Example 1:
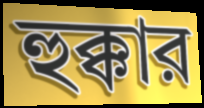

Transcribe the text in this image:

হুক্কার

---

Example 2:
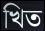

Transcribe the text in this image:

খিত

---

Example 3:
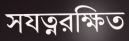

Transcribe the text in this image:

সযত্নরক্ষিত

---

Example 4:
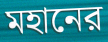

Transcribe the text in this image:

মহানের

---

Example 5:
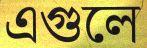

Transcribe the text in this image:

এগুলে